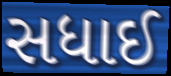
સધાઈ